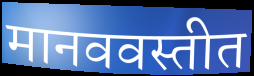
मानववस्तीत